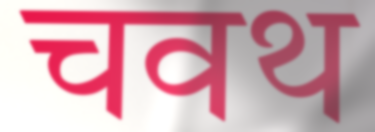
चवथ